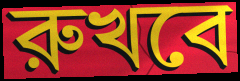
রুখবে